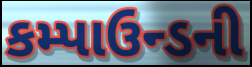
કમ્પાઉન્ડની